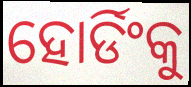
ହୋର୍ଡିଂକୁ